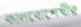
কালবোশেখীর